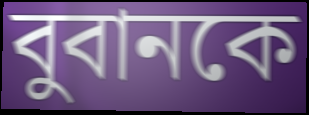
বুবানকে